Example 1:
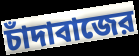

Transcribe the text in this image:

চাঁদাবাজের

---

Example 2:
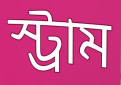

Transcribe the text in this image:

স্ট্রাম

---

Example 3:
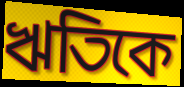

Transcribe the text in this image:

ঋতিকে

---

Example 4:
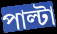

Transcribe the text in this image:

পাল্টা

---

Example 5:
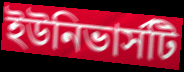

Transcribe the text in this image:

ইউনিভার্সটি